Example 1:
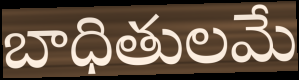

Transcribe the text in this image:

బాధితులమే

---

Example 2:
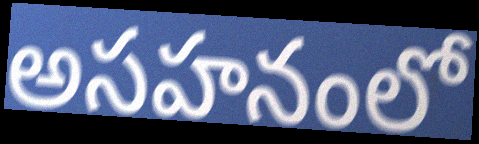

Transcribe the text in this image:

అసహనంలో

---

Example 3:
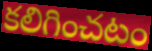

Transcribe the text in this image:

కలిగించటం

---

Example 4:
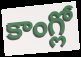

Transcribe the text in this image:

కాంగ్లో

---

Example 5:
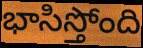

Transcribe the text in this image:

భాసిస్తోంది